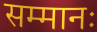
सम्मानः